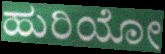
ಹುರಿಯೋ